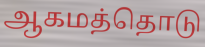
ஆகமத்தொடு